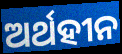
ଅର୍ଥହୀନ